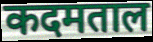
कदमताल